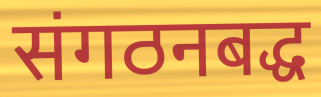
संगठनबद्ध